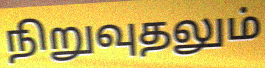
நிறுவுதலும்